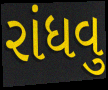
રાંધવુ